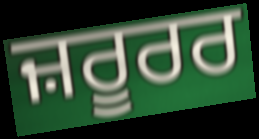
ਜ਼ਰੂਰਰ